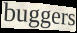
buggers